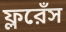
ফ্লরেঁস